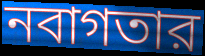
নবাগতার